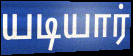
யடியார்